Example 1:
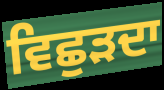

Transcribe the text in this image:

ਵਿਛੁੜਦਾ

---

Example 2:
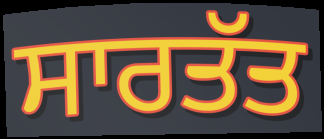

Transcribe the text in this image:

ਸਾਰਤੱਤ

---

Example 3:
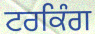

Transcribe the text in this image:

ਟਰਕਿੰਗ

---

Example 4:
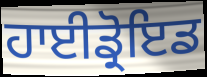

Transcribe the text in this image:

ਹਾਈਡ੍ਰੋਇਡ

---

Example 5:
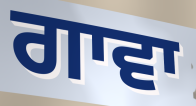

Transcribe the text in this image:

ਗਾਵਾ